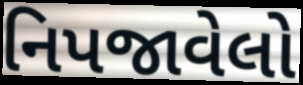
નિપજાવેલો